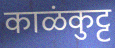
काळंकुट्ट